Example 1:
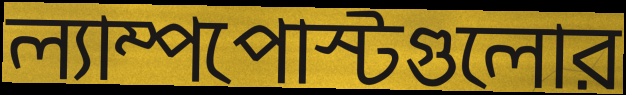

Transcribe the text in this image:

ল্যাম্পপোস্টগুলোর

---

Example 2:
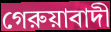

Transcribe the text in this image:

গেরুয়াবাদী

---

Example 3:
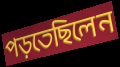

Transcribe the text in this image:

পড়তেছিলেন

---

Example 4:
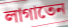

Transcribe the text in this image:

লাগাতেন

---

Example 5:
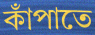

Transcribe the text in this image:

কাঁপাতে